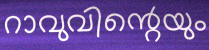
റാവുവിന്റെയും